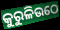
କୁରୁଳିଉଠେ